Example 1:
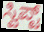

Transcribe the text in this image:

ಸ್ವಿಪ್ಟ್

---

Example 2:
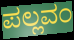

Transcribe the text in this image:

ಪಲ್ಲವಂ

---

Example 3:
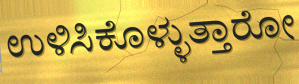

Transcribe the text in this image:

ಉಳಿಸಿಕೊಳ್ಳುತ್ತಾರೋ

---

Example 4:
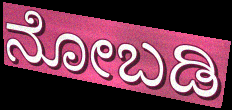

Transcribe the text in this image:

ನೋಬಡಿ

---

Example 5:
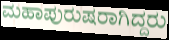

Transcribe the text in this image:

ಮಹಾಪುರುಷರಾಗಿದ್ದರು